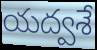
యద్వశే